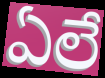
ఏలే